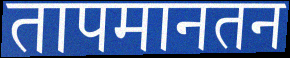
तापमानतन